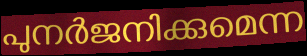
പുനർജനിക്കുമെന്ന